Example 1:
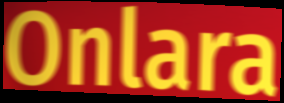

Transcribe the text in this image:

Onlara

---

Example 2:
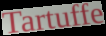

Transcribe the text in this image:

Tartuffe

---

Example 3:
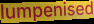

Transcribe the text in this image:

lumpenised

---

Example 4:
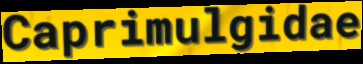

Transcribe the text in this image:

Caprimulgidae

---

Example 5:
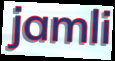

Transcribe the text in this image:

jamli